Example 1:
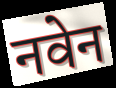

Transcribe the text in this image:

नवेन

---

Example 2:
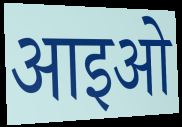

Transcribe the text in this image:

आइओ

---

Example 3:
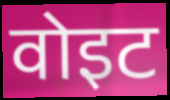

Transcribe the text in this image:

वोइट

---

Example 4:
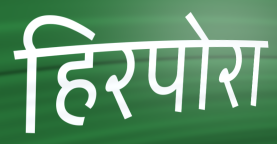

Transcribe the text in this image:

हिरपोरा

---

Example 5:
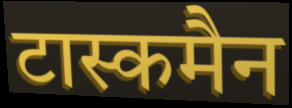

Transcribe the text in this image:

टास्कमैन